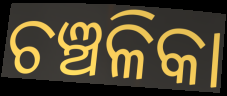
ଚଞ୍ଚଳିକା